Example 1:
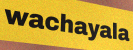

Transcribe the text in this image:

wachayala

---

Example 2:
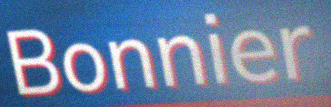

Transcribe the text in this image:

Bonnier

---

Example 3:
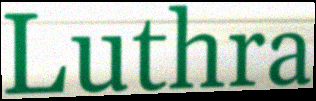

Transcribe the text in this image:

Luthra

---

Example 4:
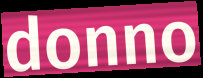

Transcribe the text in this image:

donno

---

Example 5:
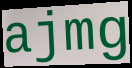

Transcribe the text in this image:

ajmg